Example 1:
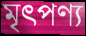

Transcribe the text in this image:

মৃৎপণ্য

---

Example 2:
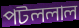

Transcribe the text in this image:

পটললাল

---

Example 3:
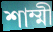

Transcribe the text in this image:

শাম্মী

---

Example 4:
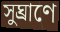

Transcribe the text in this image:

সুঘ্রাণে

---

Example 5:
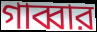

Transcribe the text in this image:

গাব্বার